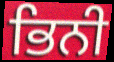
ਭਿਨੀ